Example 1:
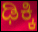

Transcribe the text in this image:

ಢಿಕ್ಕಿ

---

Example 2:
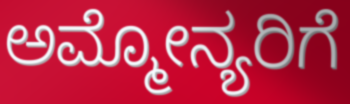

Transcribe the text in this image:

ಅಮ್ಮೋನ್ಯರಿಗೆ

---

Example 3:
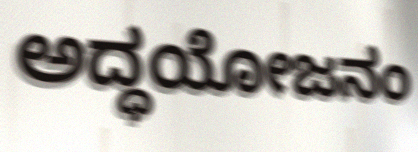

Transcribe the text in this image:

ಅದ್ಧಯೋಜನಂ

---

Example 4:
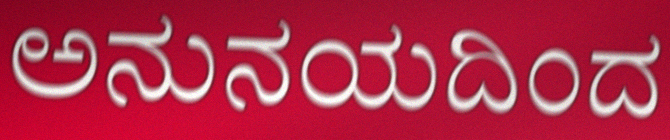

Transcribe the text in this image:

ಅನುನಯದಿಂದ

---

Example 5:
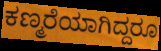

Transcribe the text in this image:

ಕಣ್ಮರೆಯಾಗಿದ್ದರೂ